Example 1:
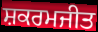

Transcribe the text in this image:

ਸ਼ਕਰਮਜੀਤ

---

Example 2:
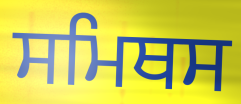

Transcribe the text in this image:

ਸਮਿਥਸ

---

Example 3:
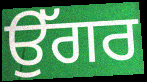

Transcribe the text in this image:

ਉੱਗਰ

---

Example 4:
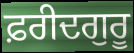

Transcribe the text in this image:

ਫ਼ਰੀਦਗੁਰੂ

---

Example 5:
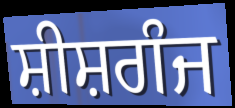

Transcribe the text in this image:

ਸ਼ੀਸ਼ਗੰਜ